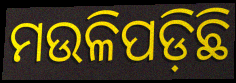
ମଉଳିପଡ଼ିଛି